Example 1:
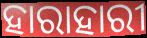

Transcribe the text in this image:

ହାରାହାରୀ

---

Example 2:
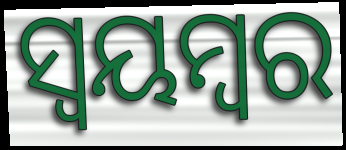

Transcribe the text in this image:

ସ୍ଵୟମ୍ବର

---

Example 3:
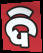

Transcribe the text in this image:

ଦି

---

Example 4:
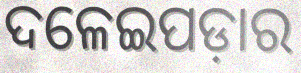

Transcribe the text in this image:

ଦଳେଇପଡ଼ାର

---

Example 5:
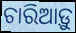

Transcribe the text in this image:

ଚାରିଆଡ଼ୁ